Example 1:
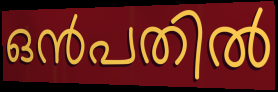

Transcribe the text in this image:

ഒൻപതിൽ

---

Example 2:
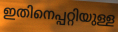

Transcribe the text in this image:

ഇതിനെപ്പറ്റിയുള്ള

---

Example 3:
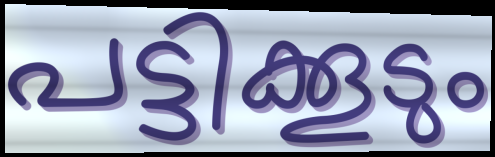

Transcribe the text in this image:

പട്ടിക്കൂടും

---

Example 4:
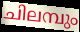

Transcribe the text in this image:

ചിലമ്പും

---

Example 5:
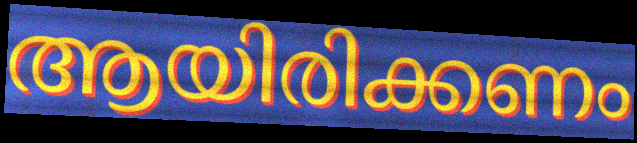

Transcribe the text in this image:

ആയിരിക്കണം